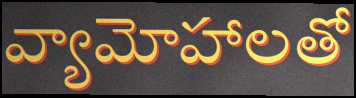
వ్యామోహాలతో